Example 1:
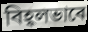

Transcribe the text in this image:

বিহ্বলভাবে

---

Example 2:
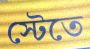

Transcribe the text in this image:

স্টেতে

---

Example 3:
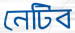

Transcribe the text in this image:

নেটিব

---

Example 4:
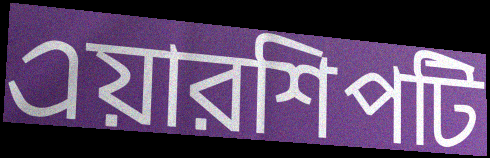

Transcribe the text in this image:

এয়ারশিপটি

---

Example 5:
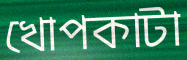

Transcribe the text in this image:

খোপকাটা